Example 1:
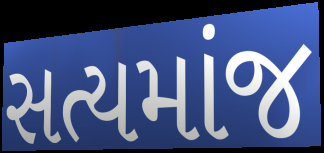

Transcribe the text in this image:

સત્યમાંજ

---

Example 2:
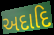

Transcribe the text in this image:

અદાદિ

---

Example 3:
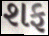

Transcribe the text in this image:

શફ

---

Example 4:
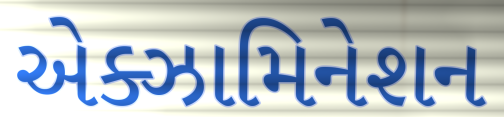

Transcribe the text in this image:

એક્ઝામિનેશન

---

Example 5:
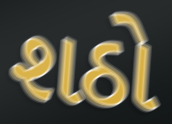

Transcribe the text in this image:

શઠો